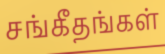
சங்கீதங்கள்